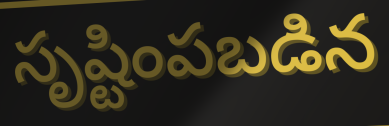
సృష్టింపబడిన